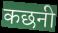
कछनी